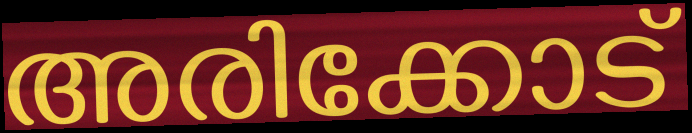
അരിക്കോട്